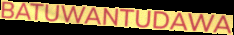
BATUWANTUDAWA